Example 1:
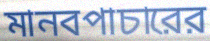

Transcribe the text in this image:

মানবপাচারের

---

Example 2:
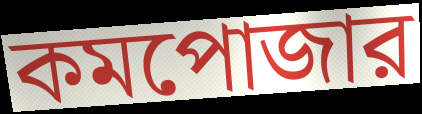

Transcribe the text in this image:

কমপোজার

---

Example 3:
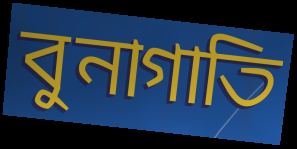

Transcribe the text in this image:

বুনাগাতি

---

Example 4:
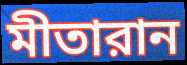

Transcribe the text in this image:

মীতারান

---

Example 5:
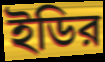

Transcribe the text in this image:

ইডির